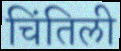
चिंतिली